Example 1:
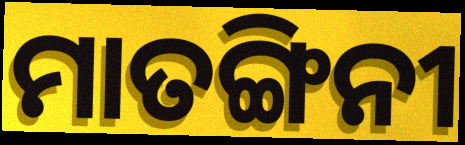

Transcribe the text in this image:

ମାତଙ୍ଗିନୀ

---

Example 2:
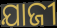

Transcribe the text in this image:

ଯାଜୀ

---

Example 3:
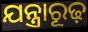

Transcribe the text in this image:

ଯନ୍ତ୍ରାରୂଢ଼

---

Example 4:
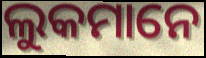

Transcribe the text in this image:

ଲୁକମାନେ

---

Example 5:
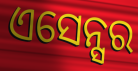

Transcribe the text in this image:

ଏସେନ୍ସର